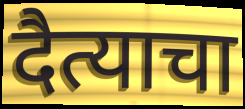
दैत्याचा